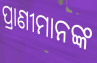
ପ୍ରାଣୀମାନଙ୍କ